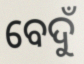
ବେଦୁଁ